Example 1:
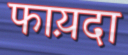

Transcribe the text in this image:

फाय़दा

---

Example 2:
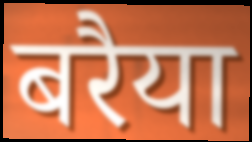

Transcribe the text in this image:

बरैया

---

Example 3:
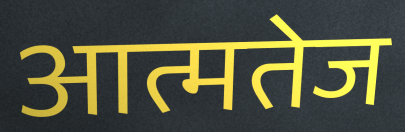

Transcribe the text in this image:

आत्मतेज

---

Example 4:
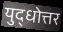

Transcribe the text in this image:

युद्धोत्तर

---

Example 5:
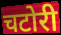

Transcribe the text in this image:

चटोरी